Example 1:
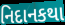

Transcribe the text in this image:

નિદાનકથા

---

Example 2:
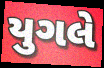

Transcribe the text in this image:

યુગલે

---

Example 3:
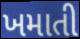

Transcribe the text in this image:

ખમાતી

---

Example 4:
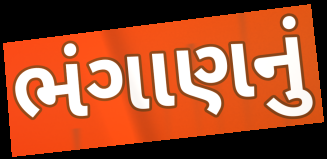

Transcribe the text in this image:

ભંગાણનું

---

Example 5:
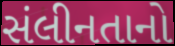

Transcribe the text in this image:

સંલીનતાનો